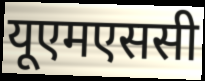
यूएमएससी